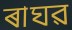
ৰাঘৱ